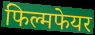
फिल्मफेयर